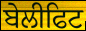
ਬੇਲੀਫਿਟ